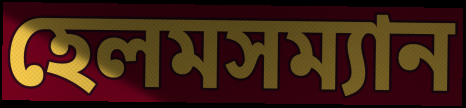
হেলমসম্যান